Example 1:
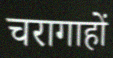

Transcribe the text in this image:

चरागाहों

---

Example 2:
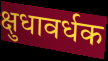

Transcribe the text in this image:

क्षुधावर्धक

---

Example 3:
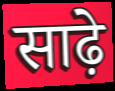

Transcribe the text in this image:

साढ़े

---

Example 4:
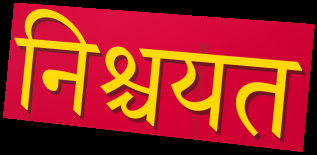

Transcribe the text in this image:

निश्चयत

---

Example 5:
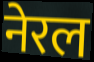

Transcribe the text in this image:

नेरल